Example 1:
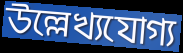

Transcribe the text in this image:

উল্লেখ্যযোগ্য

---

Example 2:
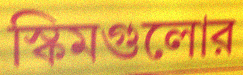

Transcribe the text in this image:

স্কিমগুলোর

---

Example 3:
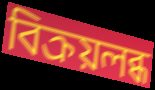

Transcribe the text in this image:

বিক্রয়লব্ধ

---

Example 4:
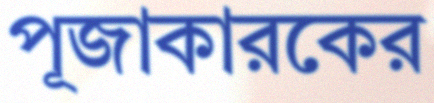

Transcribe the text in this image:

পূজাকারকের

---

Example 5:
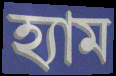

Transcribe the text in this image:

হ্যাম